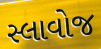
સ્લાવોજ